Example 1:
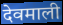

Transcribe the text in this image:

देवमाली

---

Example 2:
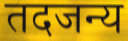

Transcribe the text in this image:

तदजन्य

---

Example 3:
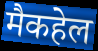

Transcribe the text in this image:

मैकहेल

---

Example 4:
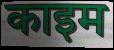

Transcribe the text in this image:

काइम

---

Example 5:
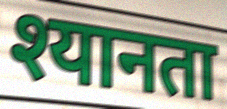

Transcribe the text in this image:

श्यानता